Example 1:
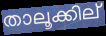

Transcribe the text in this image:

താലൂക്കില്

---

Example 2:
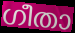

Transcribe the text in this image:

ഗീതാ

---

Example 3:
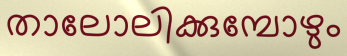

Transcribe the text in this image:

താലോലിക്കുമ്പോഴും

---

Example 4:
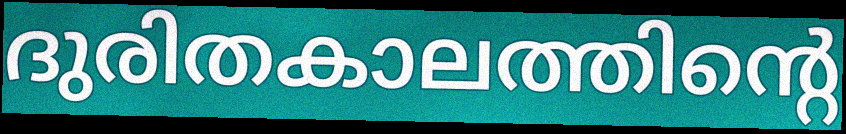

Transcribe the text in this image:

ദുരിതകാലത്തിന്റെ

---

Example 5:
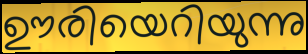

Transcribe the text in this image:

ഊരിയെറിയുന്നു